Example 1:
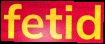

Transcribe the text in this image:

fetid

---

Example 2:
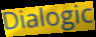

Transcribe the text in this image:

Dialogic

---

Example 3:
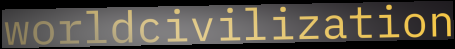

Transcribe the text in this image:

worldcivilization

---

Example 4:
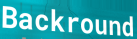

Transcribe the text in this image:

Backround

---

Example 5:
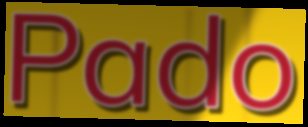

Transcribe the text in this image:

Pado